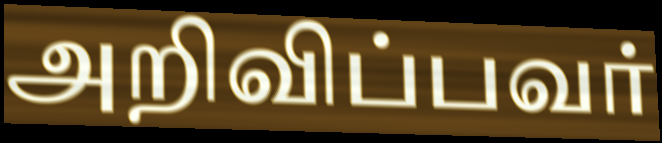
அறிவிப்பவர்